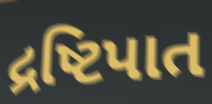
દ્રષ્ટિપાત